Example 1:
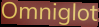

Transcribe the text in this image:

Omniglot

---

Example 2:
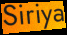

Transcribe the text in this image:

Siriya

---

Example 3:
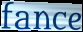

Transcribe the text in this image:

fance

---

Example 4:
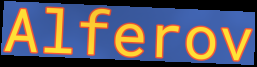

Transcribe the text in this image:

Alferov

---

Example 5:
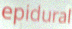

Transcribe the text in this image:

epidural